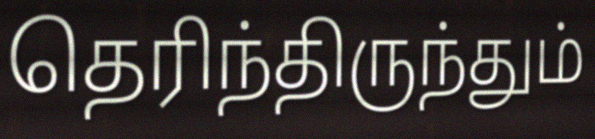
தெரிந்திருந்தும்